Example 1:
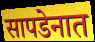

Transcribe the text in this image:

सापडेनात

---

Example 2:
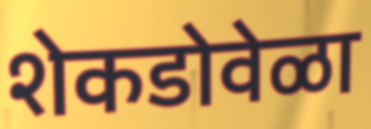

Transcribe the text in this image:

शेकडोवेळा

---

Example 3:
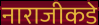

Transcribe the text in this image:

नाराजीकडे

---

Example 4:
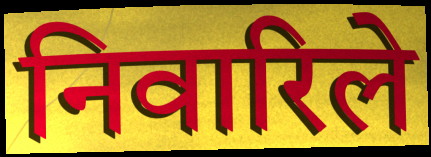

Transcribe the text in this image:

निवारिले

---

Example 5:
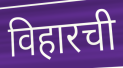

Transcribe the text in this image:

विहारची